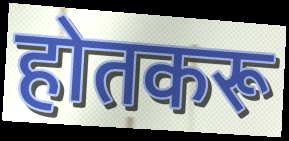
होतकरू